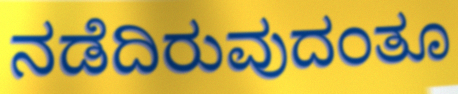
ನಡೆದಿರುವುದಂತೂ